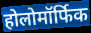
होलोमॉर्फिक